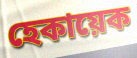
হেকায়েক